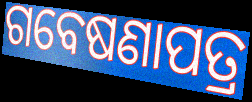
ଗବେଷଣାପତ୍ର